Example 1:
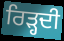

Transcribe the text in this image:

ਰਿੜ੍ਹਦੀ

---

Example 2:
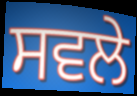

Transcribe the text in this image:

ਸਵਲੇ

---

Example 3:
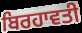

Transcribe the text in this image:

ਬਿਰਹਾਵਤੀ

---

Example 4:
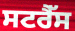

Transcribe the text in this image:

ਸਟਰੈੱਸ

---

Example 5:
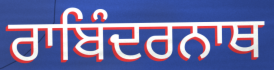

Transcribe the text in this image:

ਰਾਬਿੰਦਰਨਾਥ